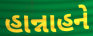
હાન્નાહને